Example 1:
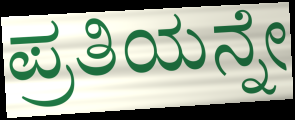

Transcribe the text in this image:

ಪ್ರತಿಯನ್ನೇ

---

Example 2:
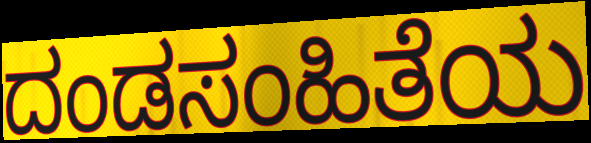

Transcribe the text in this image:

ದಂಡಸಂಹಿತೆಯ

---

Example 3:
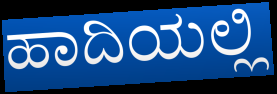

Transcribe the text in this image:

ಹಾದಿಯಲ್ಲಿ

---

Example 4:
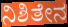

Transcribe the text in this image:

ನಿಶಿತೇನ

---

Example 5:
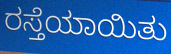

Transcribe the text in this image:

ರಸ್ತೆಯಾಯಿತು